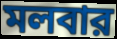
মলবার